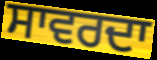
ਸਾਵਰਦਾ